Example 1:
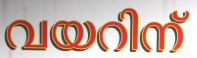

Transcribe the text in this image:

വയറിന്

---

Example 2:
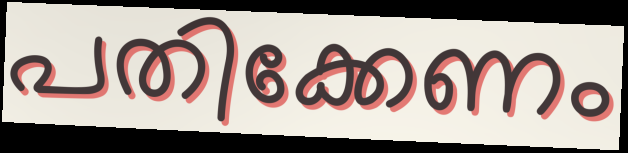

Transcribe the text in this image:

പതിക്കേണം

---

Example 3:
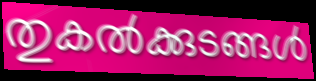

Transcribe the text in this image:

തുകൽക്കുടങ്ങൾ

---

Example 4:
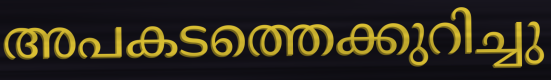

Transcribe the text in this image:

അപകടത്തെക്കുറിച്ചു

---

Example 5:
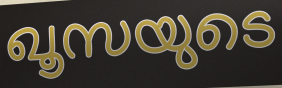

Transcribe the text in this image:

ഖൂസയുടെ